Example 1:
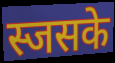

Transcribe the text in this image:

स्जसके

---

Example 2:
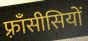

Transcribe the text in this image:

फ़्राँसीसियों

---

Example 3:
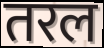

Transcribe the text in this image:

तरल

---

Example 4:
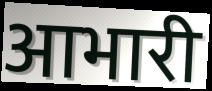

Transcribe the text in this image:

आभारी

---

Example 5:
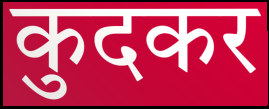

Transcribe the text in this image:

कुदकर